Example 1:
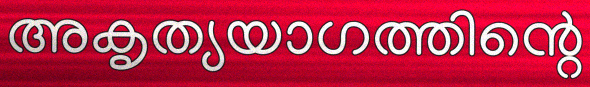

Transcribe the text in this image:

അകൃത്യയാഗത്തിന്റെ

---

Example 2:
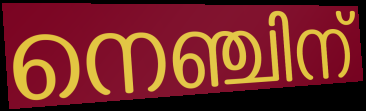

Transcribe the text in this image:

നെഞ്ചിന്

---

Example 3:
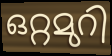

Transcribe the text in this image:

ഒറ്റമുറി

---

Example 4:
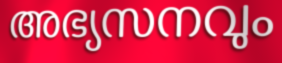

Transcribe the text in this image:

അഭ്യസനവും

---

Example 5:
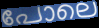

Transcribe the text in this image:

പോലെ